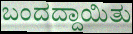
ಬಂದದ್ದಾಯಿತು